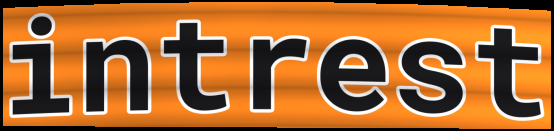
intrest